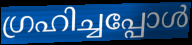
ഗ്രഹിച്ചപ്പോൾ